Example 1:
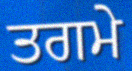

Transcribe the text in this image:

ਤਗਮੇ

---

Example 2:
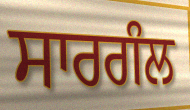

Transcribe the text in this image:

ਸਾਰਗੰਲ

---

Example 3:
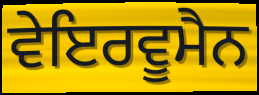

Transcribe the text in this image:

ਵੇਇਰਵੂਮੈਨ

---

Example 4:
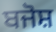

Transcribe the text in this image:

ਬਜੋਸ਼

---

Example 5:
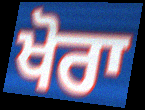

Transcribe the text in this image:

ਖੋਰਾ